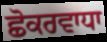
ਛੋਕਰਵਾਧਾ